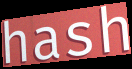
hash